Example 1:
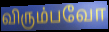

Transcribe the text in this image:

விரும்பவோ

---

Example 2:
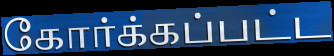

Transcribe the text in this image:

கோர்க்கப்பட்ட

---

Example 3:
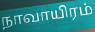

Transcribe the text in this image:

நாவாயிரம்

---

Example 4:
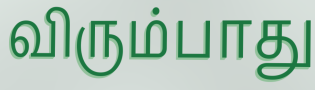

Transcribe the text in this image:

விரும்பாது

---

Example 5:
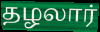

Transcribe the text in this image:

தழலார்